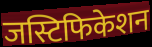
जस्टिफिकेशन